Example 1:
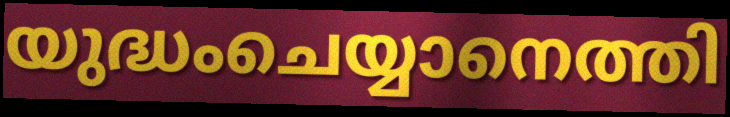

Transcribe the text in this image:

യുദ്ധംചെയ്യാനെത്തി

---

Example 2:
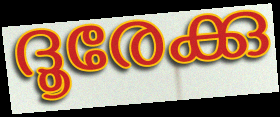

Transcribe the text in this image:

ദൂരേക്കു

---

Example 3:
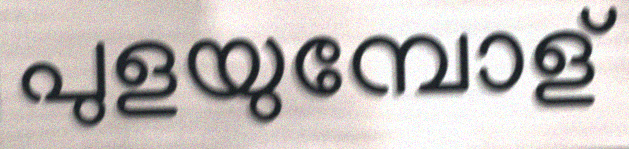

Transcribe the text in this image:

പുളയുമ്പോള്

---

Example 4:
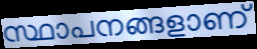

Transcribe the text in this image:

സ്ഥാപനങ്ങളാണ്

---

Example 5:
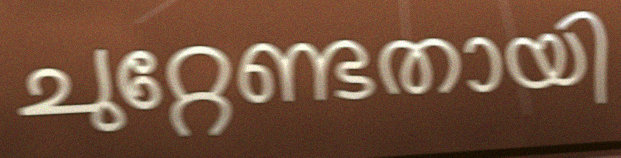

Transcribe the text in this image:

ചുറ്റേണ്ടതായി